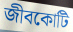
জীবকোটি